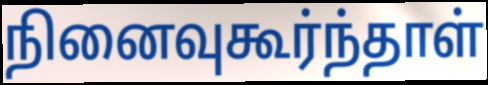
நினைவுகூர்ந்தாள்